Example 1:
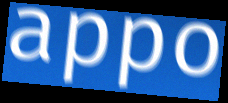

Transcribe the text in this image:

appo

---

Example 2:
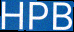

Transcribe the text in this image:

HPB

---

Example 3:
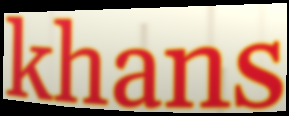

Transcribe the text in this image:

khans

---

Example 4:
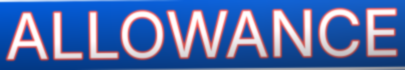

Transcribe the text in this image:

ALLOWANCE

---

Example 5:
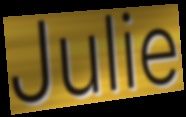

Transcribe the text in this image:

Julie